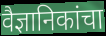
वैज्ञानिकांचा